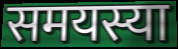
समयस्या